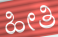
ಹೀತಿ